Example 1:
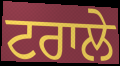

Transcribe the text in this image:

ਟਰਾਲੇ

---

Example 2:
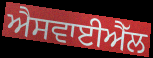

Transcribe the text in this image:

ਐਸਵਾਈਐੱਲ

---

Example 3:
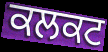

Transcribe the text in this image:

ਕਲਕਟ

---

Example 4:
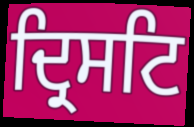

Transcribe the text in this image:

ਦ੍ਰਿਸਟਿ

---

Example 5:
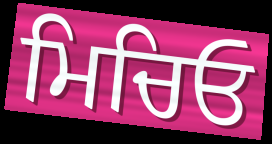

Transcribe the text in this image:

ਮਿਚਿਓ